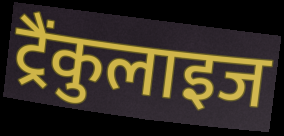
ट्रैंकुलाइज